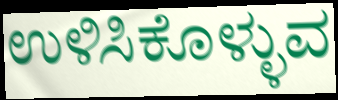
ಉಳಿಸಿಕೊಳ್ಳುವ